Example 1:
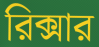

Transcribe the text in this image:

রিক্সার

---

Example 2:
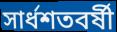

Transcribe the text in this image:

সার্ধশতবর্ষী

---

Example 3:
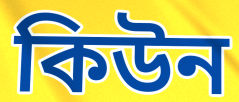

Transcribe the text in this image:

কিউন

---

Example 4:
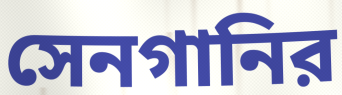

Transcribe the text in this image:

সেনগানির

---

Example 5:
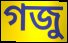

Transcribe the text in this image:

গজু